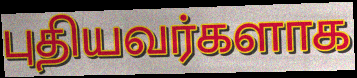
புதியவர்களாக